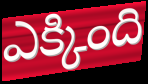
ఎక్కింది